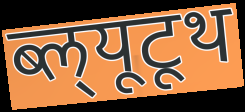
ब्ल्यूटूथ